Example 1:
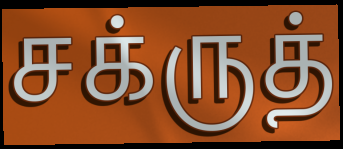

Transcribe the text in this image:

சக்ருத்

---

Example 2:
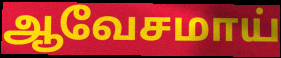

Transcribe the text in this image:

ஆவேசமாய்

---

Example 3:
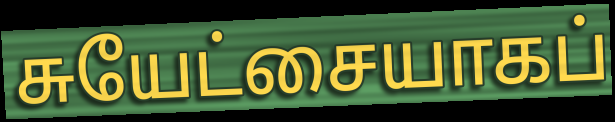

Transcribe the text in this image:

சுயேட்சையாகப்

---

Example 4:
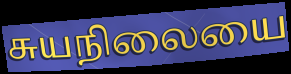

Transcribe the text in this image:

சுயநிலையை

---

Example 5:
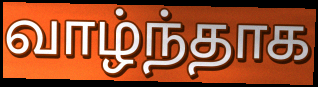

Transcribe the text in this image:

வாழ்ந்தாக